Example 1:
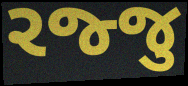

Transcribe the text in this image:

રજ્જુ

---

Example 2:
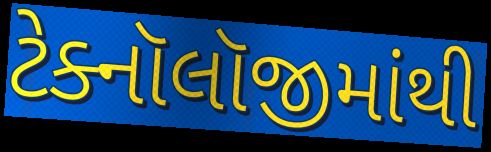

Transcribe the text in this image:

ટેક્નૉલૉજીમાંથી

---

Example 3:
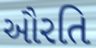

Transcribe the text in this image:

ઔરતિ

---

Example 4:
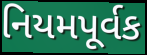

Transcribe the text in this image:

નિયમપૂર્વક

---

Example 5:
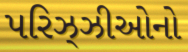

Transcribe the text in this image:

પરિઝ્ઝીઓનો